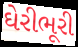
ઘેરીભૂરી